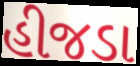
હીજડા